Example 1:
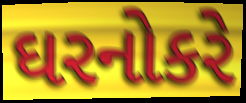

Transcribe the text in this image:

ઘરનોકરે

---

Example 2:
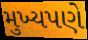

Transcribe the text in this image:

મુખ્યપણે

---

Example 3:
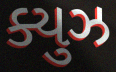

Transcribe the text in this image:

ક્યુઝ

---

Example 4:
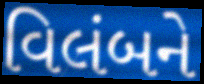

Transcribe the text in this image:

વિલંબને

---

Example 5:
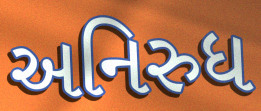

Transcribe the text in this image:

અનિરુધ